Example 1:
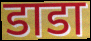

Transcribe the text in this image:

डाडा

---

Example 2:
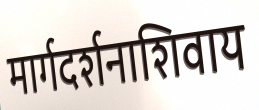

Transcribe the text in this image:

मार्गदर्शनाशिवाय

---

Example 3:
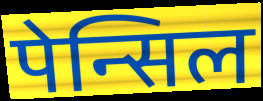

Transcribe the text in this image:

पेन्सिल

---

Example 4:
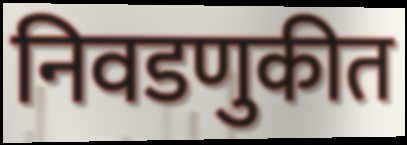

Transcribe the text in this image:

निवडणुकीत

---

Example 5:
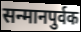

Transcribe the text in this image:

सन्मानपुर्वक